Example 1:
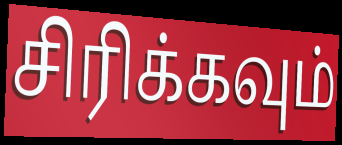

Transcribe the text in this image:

சிரிக்கவும்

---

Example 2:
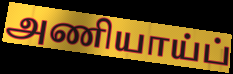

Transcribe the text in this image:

அணியாய்ப்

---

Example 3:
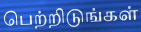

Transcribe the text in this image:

பெற்றிடுங்கள்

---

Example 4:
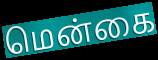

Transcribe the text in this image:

மென்கை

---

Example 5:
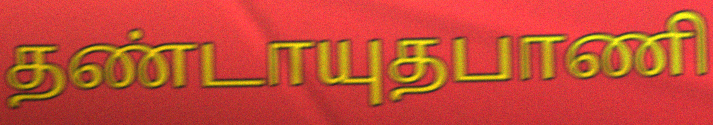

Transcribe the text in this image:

தண்டாயுதபாணி